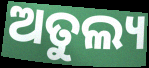
ଅତୁଲ୍ୟ